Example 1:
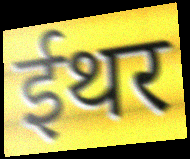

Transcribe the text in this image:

ईथर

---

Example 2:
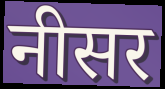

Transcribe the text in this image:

नीसर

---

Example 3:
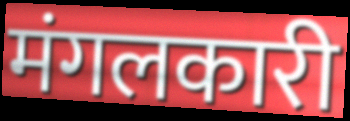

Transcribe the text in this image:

मंगलकारी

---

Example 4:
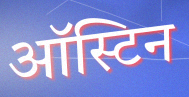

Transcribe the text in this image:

ऑस्टिन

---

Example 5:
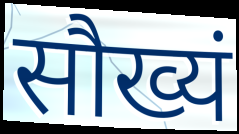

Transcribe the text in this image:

सौख्यं